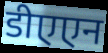
डीएएन